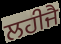
ਲਹੀਜੈ